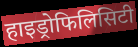
हाइड्रोफिलिसिटी